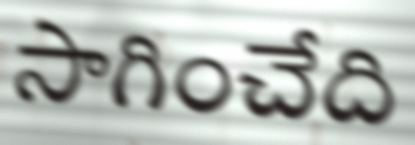
సాగించేది